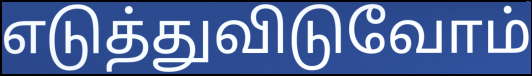
எடுத்துவிடுவோம்